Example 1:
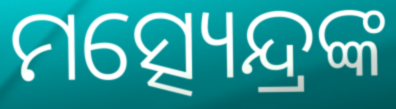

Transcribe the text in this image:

ମତ୍ସ୍ୟେନ୍ଦ୍ରଙ୍କ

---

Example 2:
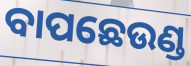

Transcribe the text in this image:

ବାପଛେଉଣ୍ଡ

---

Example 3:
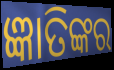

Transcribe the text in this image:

ଜ୍ଞାତିଙ୍କର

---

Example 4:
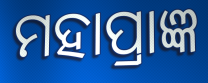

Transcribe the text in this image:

ମହାପ୍ରାଜ୍ଞ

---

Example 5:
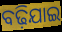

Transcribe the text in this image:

ବଢ଼ିଯାଇ